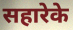
सहारेके